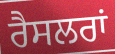
ਰੈਸਲਰਾਂ